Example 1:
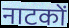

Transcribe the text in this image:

नाटकों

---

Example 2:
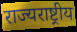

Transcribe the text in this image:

राज्यराष्ट्रीय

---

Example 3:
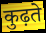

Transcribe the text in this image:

कुढ़ते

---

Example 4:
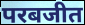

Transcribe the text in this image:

परबजीत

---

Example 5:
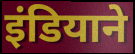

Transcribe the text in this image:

इंडियाने